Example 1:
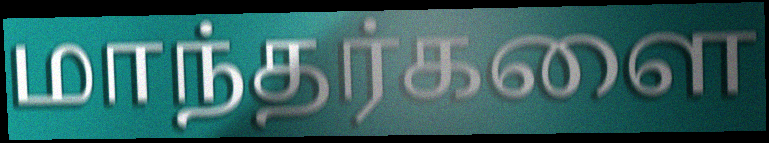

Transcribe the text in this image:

மாந்தர்களை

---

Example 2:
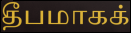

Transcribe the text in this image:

தீபமாகக்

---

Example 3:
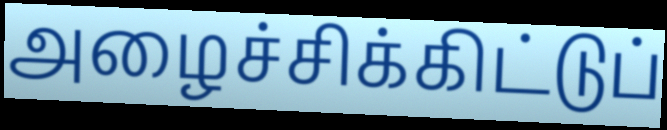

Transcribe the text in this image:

அழைச்சிக்கிட்டுப்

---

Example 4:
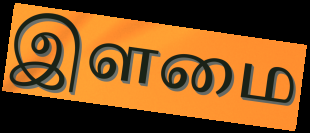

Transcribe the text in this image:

இளமை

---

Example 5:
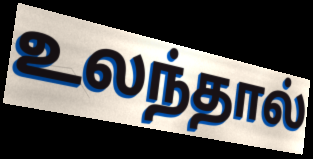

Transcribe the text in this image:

உலந்தால்